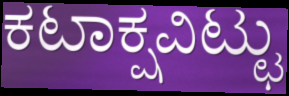
ಕಟಾಕ್ಷವಿಟ್ಟು